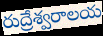
రుద్రేశ్వరాలయ